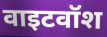
वाइटवॉश